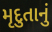
મૃદુતાનું